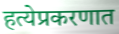
हत्येप्रकरणात